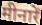
मीनारें